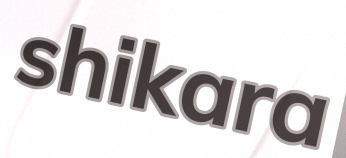
shikara